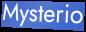
Mysterio